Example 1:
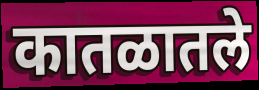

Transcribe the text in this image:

कातळातले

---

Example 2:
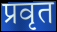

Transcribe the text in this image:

प्रवृत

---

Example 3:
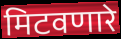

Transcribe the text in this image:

मिटवणारे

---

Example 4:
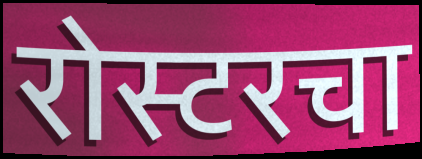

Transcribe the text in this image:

रोस्टरचा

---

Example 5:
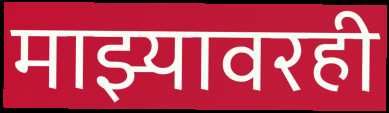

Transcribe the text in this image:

माझ्यावरही